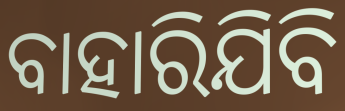
ବାହାରିଯିବି